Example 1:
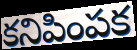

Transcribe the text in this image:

కనిపింపక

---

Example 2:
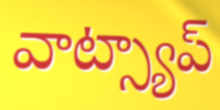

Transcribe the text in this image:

వాట్స్యాప్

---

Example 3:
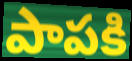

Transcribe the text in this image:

పాపకి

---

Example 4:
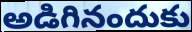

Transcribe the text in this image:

అడిగినందుకు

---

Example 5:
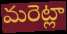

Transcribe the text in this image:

మరెట్లా